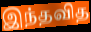
இந்தவித